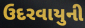
ઉદરવાયુની